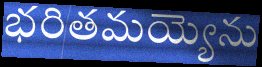
భరితమయ్యెను